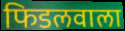
फिडलवाला